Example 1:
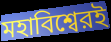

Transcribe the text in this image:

মহাবিশ্বেরই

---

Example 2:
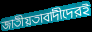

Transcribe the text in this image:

জাতীয়তাবাদীদেরই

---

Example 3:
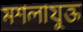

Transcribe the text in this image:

মশলাযুক্ত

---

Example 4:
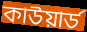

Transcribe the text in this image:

কাউয়ার্ড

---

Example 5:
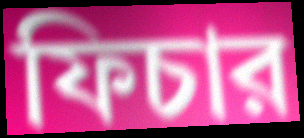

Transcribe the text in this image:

ফিচার